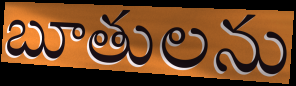
బూతులను